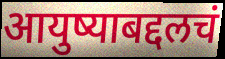
आयुष्याबद्दलचं